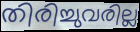
തിരിച്ചുവരില്ല